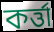
কর্ত্তা